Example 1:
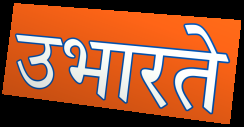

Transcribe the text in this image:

उभारते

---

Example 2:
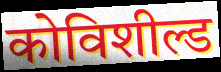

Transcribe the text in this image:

कोविशील्ड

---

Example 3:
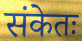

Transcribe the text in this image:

संकेतः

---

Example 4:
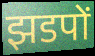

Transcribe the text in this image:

झडपों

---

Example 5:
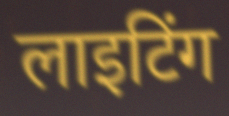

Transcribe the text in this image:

लाइटिंग